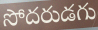
సోదరుడగు